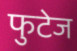
फुटेज